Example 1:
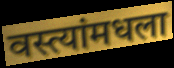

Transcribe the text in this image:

वस्त्यांमधला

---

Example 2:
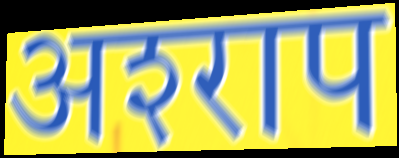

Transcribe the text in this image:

अश्राप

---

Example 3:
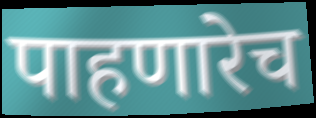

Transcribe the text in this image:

पाहणारेच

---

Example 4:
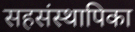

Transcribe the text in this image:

सहसंस्थापिका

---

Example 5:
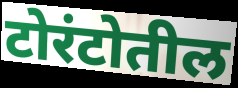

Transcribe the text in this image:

टोरंटोतील